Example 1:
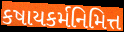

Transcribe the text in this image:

કષાયકર્મનિમિત્ત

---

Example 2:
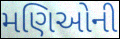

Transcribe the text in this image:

મણિઓની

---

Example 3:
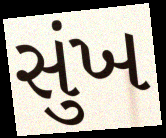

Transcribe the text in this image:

સુંખ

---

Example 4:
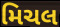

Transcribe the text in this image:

મિચલ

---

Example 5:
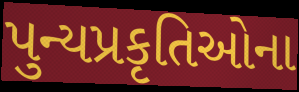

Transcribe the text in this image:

પુન્યપ્રકૃતિઓના